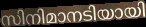
സിനിമാനടിയായി